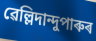
ৱেল্লিদান্দুপাৰুৰ